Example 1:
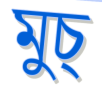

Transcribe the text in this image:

মুচ্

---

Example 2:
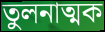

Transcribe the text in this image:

তুলনাত্মক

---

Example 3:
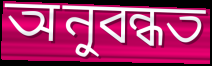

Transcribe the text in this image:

অনুবন্ধত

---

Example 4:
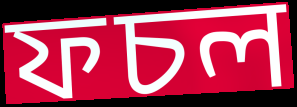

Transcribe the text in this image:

ফচল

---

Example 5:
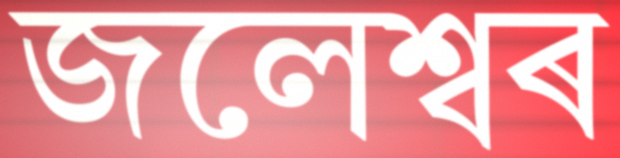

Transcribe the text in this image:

জলেশ্বৰ